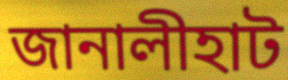
জানালীহাট